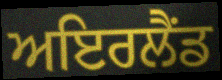
ਅਇਰਲੈਂਡ